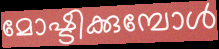
മോഷ്ടിക്കുമ്പോൾ